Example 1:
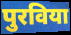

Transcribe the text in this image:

पुरविया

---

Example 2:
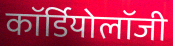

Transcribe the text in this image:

कॉर्डियोलॉजी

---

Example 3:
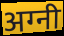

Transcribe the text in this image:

अग्नी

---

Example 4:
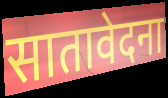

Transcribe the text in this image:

सातावेदना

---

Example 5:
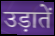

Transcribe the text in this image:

उड़ातें